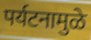
पर्यटनामुळे